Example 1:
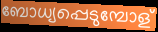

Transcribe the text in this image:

ബോധ്യപ്പെടുമ്പോള്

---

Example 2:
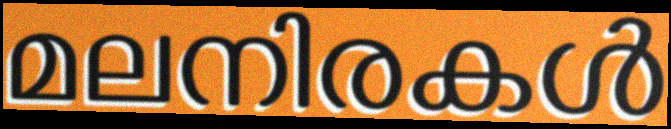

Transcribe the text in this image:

മലനിരകൾ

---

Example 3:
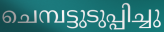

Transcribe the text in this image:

ചെമ്പട്ടുടുപ്പിച്ചു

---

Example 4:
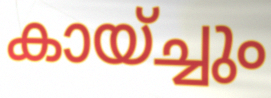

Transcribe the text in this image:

കായ്ച്ചും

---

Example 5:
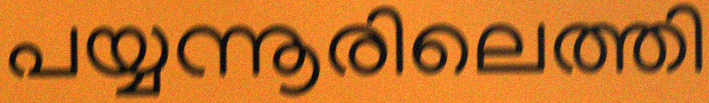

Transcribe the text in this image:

പയ്യന്നൂരിലെത്തി